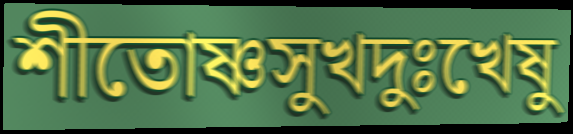
শীতোষ্ণসুখদুঃখেষু